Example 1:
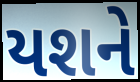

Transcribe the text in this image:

યશને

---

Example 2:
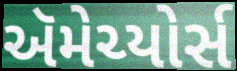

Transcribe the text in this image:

ઍમેચ્યોર્સ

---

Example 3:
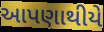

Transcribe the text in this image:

આપણાથીયે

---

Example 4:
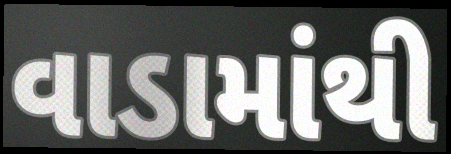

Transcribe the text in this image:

વાડામાંથી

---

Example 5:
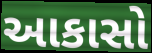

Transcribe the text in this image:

આકાસો